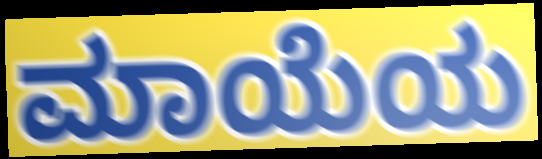
ಮಾಯೆಯ